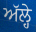
ਅੱਲ੍ਹੇ